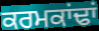
ਕਰਮਕਾਂਢਾਂ